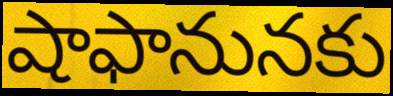
షాఫానునకు